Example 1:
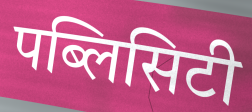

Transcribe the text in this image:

पब्लिसिटी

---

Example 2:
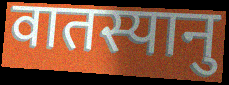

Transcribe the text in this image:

वातस्यानु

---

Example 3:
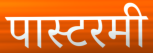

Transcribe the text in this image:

पास्टरमी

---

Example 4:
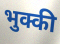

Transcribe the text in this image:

भुक्की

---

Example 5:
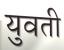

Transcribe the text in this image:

युवती